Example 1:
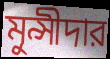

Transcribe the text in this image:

মুন্সীদার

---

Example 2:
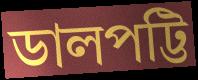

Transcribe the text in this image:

ডালপট্টি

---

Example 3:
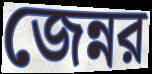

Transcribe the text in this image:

জেন্নর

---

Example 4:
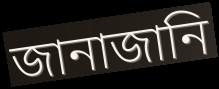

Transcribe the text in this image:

জানাজানি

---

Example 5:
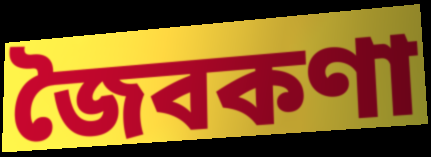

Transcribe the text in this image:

জৈবকণা